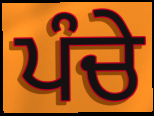
ਪੰਚੇ